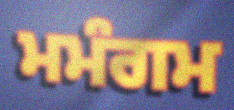
ਮਮੰਗਮ